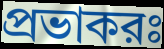
প্রভাকরঃ